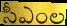
సీఎంల